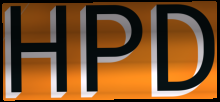
HPD